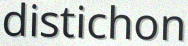
distichon